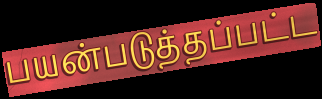
பயன்படுத்தப்பட்ட